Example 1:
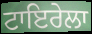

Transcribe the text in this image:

ਟਾਇਰੇਲਾ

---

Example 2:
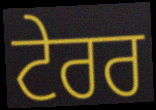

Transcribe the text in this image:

ਟੇਰਰ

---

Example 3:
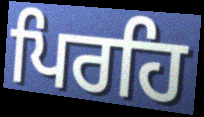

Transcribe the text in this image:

ਪਿਰਹਿ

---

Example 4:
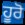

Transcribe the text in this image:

ਹੂਰੋ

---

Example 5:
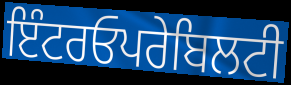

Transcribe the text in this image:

ਇੰਟਰਓਪਰੇਬਿਲਟੀ